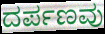
ದರ್ಪಣವು